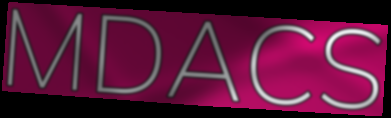
MDACS